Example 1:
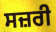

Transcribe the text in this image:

ਸਜ਼ਰੀ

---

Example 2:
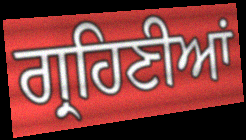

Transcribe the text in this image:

ਗ੍ਰਹਿਣੀਆਂ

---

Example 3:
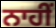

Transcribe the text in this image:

ਨਾਹੀਂ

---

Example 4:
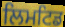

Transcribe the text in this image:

ਲਿਮਟਿਡ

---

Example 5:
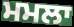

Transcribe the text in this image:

ਮਮਲਾ